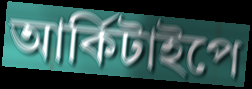
আর্কিটাইপে